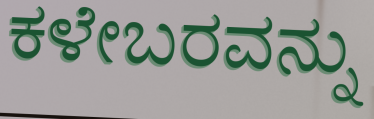
ಕಳೇಬರವನ್ನು